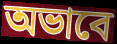
অভাবে